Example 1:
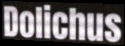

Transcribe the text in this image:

Dolichus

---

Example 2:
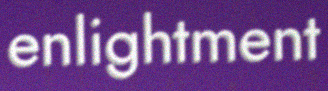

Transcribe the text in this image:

enlightment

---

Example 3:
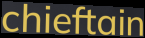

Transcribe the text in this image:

chieftain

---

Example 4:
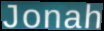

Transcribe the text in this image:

Jonah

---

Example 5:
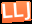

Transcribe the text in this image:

LLJ